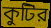
কুটির